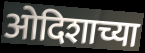
ओदिशाच्या